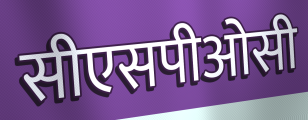
सीएसपीओसी